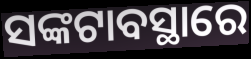
ସଙ୍କଟାବସ୍ଥାରେ